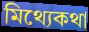
মিথ্যেকথা